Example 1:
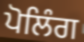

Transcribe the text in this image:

ਪੋਲਿੰਗ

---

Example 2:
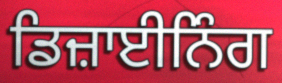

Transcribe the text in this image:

ਡਿਜ਼ਾਈਨਿੰਗ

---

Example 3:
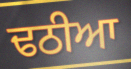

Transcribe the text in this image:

ਢਠੀਆ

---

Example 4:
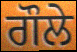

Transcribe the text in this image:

ਗੌਲੇ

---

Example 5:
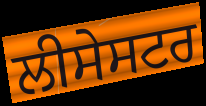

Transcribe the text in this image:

ਲੀਸੇਸਟਰ